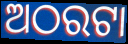
ଅଠରଟା